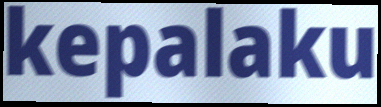
kepalaku